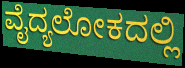
ವೈದ್ಯಲೋಕದಲ್ಲಿ